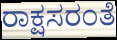
ರಾಕ್ಷಸರಂತೆ